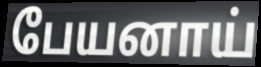
பேயனாய்